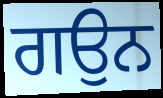
ਗਉਨ